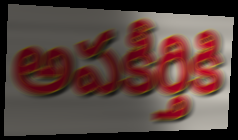
అపకీర్తికి